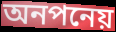
অনপনেয়